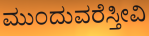
ಮುಂದುವರೆಸ್ತೀವಿ